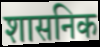
शासनिक